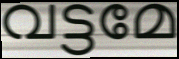
വട്ടമേ